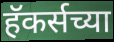
हॅकर्सच्या